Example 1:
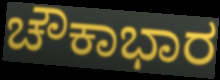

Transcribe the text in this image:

ಚೌಕಾಭಾರ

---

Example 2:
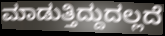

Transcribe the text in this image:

ಮಾಡುತ್ತಿದ್ದುದಲ್ಲದೆ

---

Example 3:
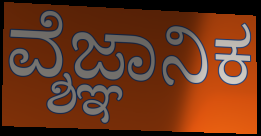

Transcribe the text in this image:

ವ್ಶೆಜ್ಞಾನಿಕ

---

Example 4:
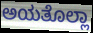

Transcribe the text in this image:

ಅಯತೊಲ್ಲಾ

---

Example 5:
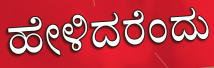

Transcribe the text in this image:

ಹೇಳಿದರೆಂದು